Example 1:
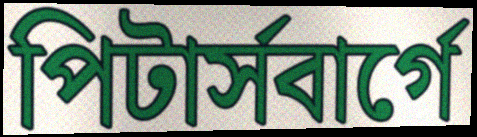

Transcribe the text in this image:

পিটার্সবার্গে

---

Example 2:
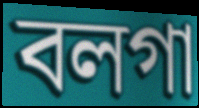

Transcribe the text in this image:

বলগা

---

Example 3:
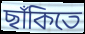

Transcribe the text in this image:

ছাঁকিতে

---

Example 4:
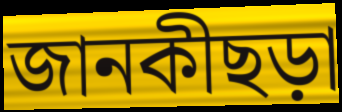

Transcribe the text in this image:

জানকীছড়া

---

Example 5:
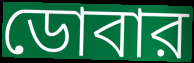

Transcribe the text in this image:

ডোবার